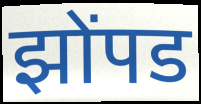
झोंपड